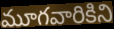
మూగవారికిని